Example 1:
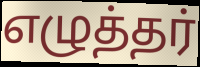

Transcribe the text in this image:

எழுத்தர்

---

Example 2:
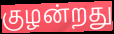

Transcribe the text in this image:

குழன்றது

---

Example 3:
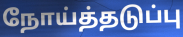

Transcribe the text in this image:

நோய்த்தடுப்பு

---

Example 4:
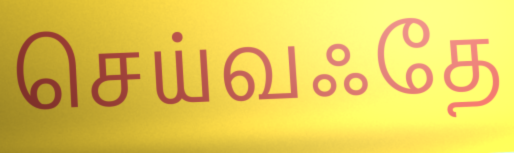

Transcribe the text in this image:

செய்வஃதே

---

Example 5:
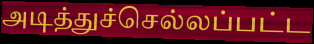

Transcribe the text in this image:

அடித்துச்செல்லப்பட்ட